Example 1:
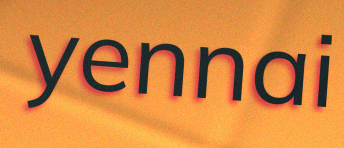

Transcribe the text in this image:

yennai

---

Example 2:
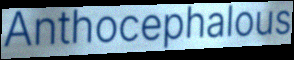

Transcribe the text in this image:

Anthocephalous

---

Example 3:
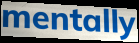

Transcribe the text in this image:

mentally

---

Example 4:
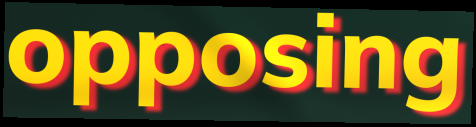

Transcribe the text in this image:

opposing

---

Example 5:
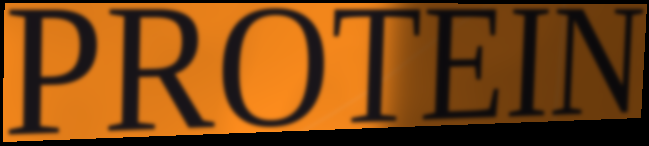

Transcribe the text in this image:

PROTEIN